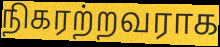
நிகரற்றவராக